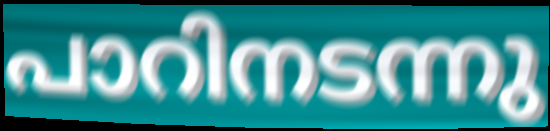
പാറിനടന്നു